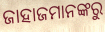
ଜାହାଜମାନଙ୍କରୁ